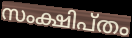
സംക്ഷിപ്തം